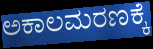
ಅಕಾಲಮರಣಕ್ಕೆ